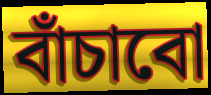
বাঁচাবো